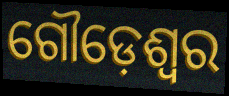
ଗୌଡ଼େଶ୍ୱର